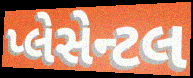
પ્લેસેન્ટલ